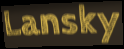
Lansky